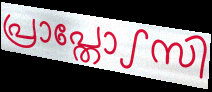
പ്രാപ്തോഽസി